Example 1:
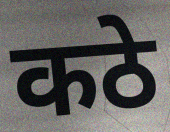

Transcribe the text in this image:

कठे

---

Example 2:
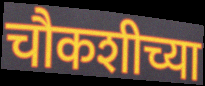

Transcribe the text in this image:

चौकशीच्या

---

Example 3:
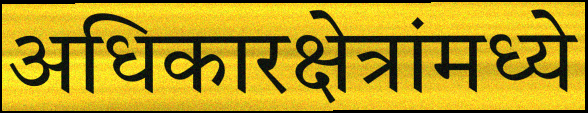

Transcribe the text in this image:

अधिकारक्षेत्रांमध्ये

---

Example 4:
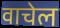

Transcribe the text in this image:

वाचेल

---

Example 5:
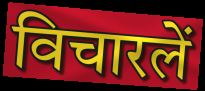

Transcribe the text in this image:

विचारलें